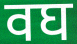
वघ